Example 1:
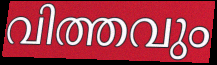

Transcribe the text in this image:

വിത്തവും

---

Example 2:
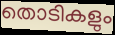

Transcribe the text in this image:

തൊടികളും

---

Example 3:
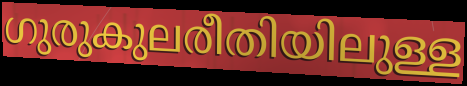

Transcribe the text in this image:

ഗുരുകുലരീതിയിലുള്ള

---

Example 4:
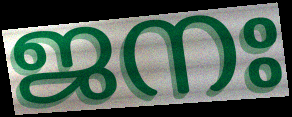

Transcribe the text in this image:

ജനഃ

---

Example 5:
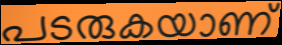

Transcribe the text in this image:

പടരുകയാണ്